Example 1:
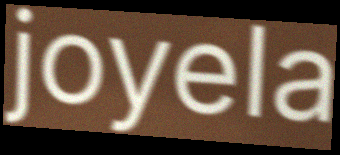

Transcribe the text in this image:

joyela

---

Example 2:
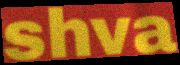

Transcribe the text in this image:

shva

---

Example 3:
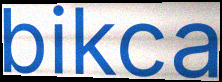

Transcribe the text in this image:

bikca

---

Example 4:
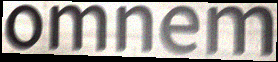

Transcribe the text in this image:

omnem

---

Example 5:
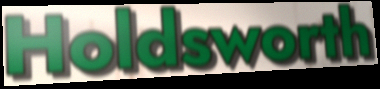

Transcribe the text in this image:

Holdsworth